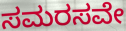
ಸಮರಸವೇ